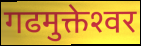
गढमुक्तेश्वर